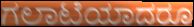
ಗಲಾಟೆಯಾದರೂ